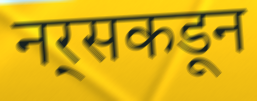
नर्सकडून